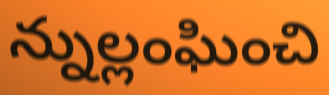
న్నుల్లంఘించి